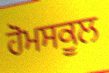
ਹੋਮਸਕੂਲ